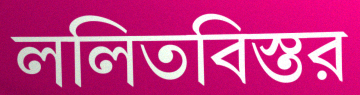
ললিতবিস্তর